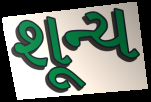
શૂન્ય